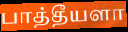
பாத்தீயளா